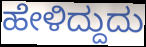
ಹೇಳಿದ್ದುದು